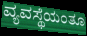
ವ್ಯವಸ್ಥೆಯಂತೂ